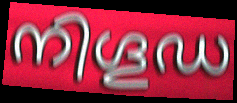
നിഗൂഡ